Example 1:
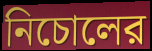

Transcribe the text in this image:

নিচোলের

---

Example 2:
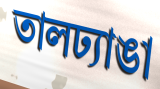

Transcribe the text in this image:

তালঢ্যাঙা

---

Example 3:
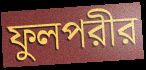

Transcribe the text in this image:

ফুলপরীর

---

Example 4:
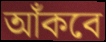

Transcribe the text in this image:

আঁকবে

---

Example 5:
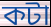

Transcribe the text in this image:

কটা